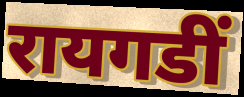
रायगडीं